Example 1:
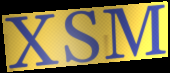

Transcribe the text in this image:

XSM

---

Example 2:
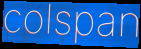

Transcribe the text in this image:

colspan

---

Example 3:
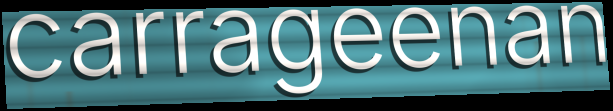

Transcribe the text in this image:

carrageenan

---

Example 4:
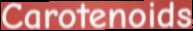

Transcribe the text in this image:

Carotenoids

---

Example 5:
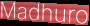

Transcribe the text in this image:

Madhuro